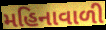
મહિનાવાળી